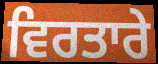
ਵਿਰਤਾਰੇ